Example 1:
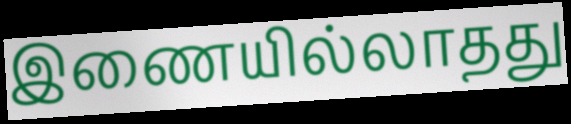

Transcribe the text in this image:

இணையில்லாதது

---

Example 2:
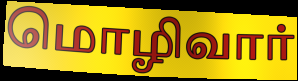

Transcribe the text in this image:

மொழிவார்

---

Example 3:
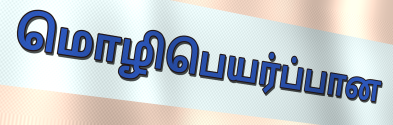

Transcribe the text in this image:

மொழிபெயர்ப்பான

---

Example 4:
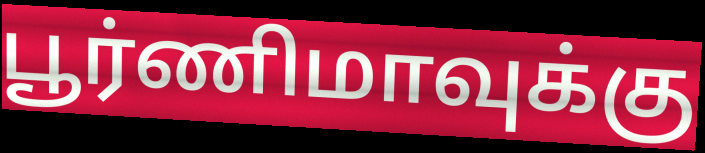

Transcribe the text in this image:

பூர்ணிமாவுக்கு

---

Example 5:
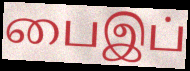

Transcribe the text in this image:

பைஇப்